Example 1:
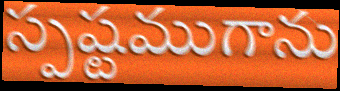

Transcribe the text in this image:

స్పష్టముగాను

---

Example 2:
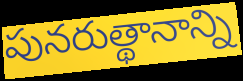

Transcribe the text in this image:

పునరుత్థానాన్ని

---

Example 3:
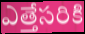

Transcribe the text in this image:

ఎత్తేసరికి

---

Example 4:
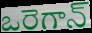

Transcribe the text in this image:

ఒరెగాన్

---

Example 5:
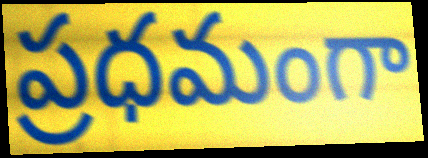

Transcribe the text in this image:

ప్రధమంగా